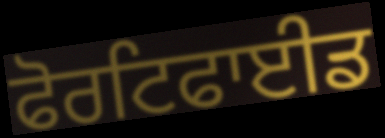
ਫੋਰਟਿਫਾਈਡ